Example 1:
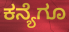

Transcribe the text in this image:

ಕನ್ಯೆಗೂ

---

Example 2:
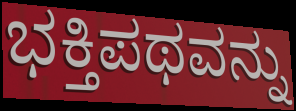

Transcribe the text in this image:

ಭಕ್ತಿಪಥವನ್ನು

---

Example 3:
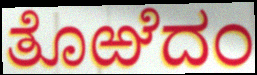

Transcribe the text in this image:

ತೊಱೆದಂ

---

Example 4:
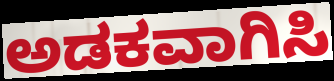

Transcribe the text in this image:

ಅಡಕವಾಗಿಸಿ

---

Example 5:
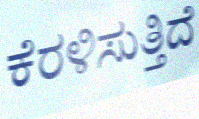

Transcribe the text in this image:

ಕೆರಳಿಸುತ್ತಿದೆ